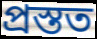
প্ৰস্তত